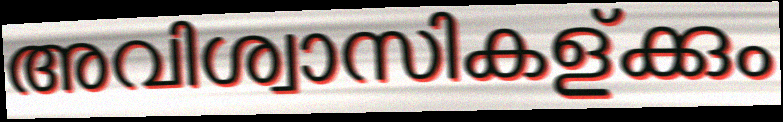
അവിശ്വാസികള്ക്കും